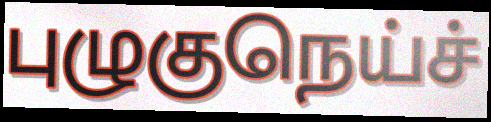
புழுகுநெய்ச்